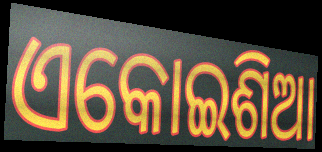
ଏକୋଇଶିଆ